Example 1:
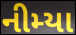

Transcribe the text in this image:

નીમ્યા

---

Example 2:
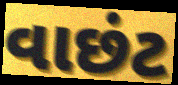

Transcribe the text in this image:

વાછંટ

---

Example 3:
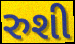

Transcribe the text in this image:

રુશી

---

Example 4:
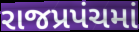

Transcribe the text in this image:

રાજપ્રપંચમાં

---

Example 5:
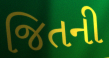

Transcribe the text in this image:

જિતની